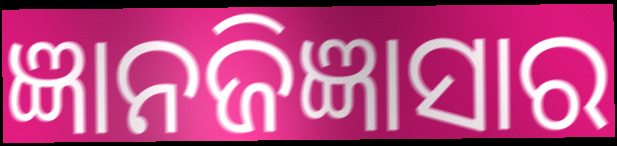
ଜ୍ଞାନଜିଜ୍ଞାସାର